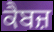
ਕੈਬਜ਼